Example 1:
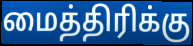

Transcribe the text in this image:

மைத்திரிக்கு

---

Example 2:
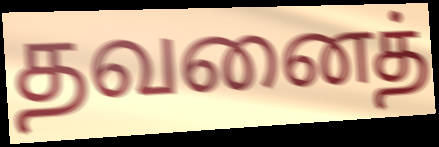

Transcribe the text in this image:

தவனைத்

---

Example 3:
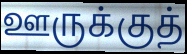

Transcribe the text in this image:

ஊருக்குத்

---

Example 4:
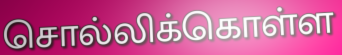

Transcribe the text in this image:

சொல்லிக்கொள்ள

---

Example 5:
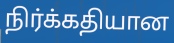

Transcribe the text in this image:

நிர்க்கதியான